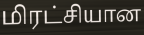
மிரட்சியான